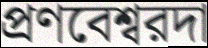
প্রণবেশ্বরদা